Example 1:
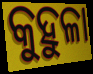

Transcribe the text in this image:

କୁହୁଳା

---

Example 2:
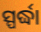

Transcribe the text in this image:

ସ୍ପର୍ଦ୍ଧା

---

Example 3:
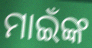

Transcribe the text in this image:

ମାଇଁଙ୍କ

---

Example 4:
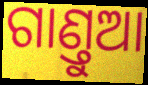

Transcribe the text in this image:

ଗାଣ୍ତୁଆ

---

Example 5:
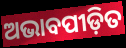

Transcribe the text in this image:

ଅଭାବପୀଡ଼ିତ